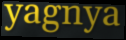
yagnya